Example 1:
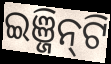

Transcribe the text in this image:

ଇଞ୍ଜିନ୍‌ଟି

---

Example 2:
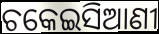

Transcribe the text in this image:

ଚକେଇସିଆଣୀ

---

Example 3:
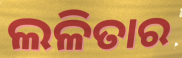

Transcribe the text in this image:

ଲଳିତାର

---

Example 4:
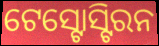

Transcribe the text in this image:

ଟେସ୍ଟୋସ୍ଟିରନ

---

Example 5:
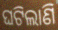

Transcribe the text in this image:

ଘଟିଲାଣି